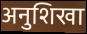
अनुशिखा